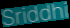
Sriddhi